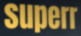
superr